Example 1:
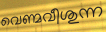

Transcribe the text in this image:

വെണ്മവീശുന്ന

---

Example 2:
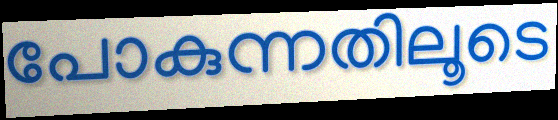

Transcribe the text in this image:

പോകുന്നതിലൂടെ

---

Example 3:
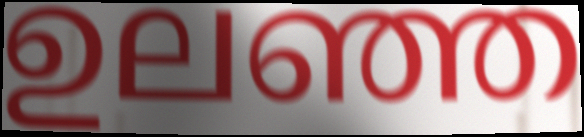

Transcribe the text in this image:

ഉലഞ്ഞ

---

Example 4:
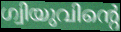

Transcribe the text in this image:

ഗ്വിയുവിന്റെ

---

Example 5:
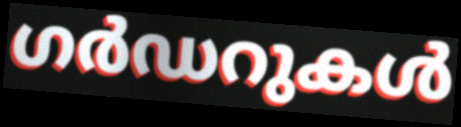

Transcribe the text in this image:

ഗർഡറുകൾ